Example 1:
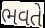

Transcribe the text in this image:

ભવતે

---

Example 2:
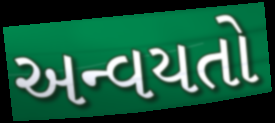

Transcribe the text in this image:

અન્વયતો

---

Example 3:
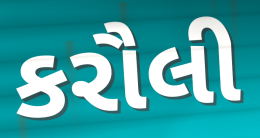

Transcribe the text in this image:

કરૌલી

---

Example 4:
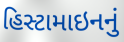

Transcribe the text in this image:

હિસ્ટામાઇનનું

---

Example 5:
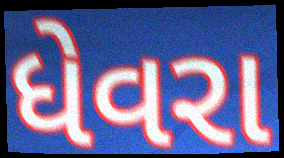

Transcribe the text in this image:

ધેવરા